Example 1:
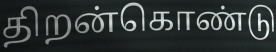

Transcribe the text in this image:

திறன்கொண்டு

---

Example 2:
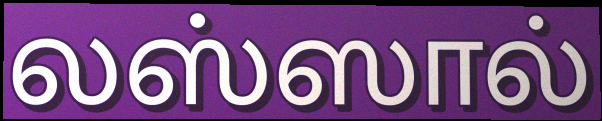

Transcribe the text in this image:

லஸ்ஸால்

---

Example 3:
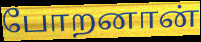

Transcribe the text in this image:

போறனான்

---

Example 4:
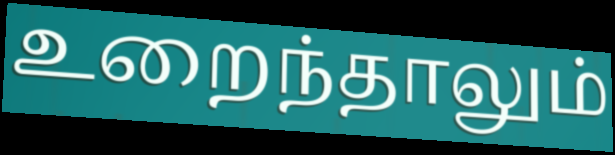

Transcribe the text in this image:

உறைந்தாலும்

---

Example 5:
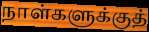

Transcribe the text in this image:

நாள்களுக்குத்